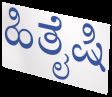
ಹಿತೈಷಿ